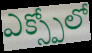
ఎక్స్పోలో